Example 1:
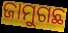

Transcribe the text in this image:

ଜାମୁଗଛ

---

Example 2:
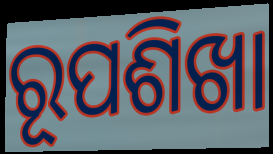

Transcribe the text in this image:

ରୂପଶିଖା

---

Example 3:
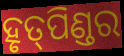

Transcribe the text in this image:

ହୃତ୍‍ପିଣ୍ଡର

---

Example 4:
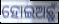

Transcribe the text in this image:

ହୋଇଅଛୁଁ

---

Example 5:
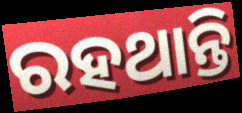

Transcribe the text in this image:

ରହଥାନ୍ତି